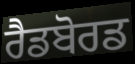
ਰੈਡਬੋਰਡ